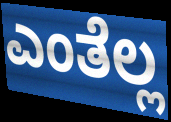
ಎಂತೆಲ್ಲ